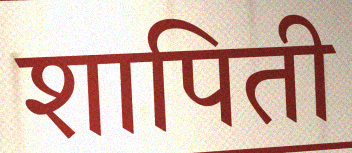
शापिती